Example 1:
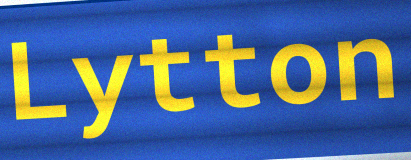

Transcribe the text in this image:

Lytton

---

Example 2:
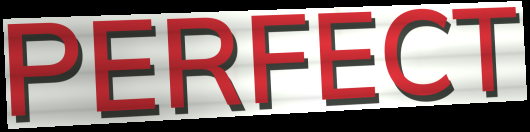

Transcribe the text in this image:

PERFECT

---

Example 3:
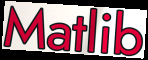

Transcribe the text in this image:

Matlib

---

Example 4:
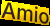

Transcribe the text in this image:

Amio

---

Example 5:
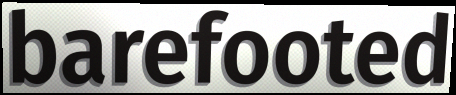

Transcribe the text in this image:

barefooted